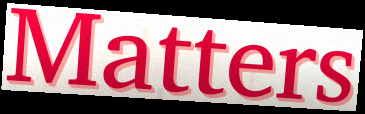
Matters